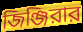
জিঞ্জিরার